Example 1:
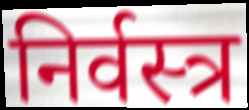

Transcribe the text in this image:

निर्वस्त्र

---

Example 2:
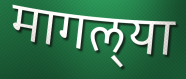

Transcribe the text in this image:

मागल्या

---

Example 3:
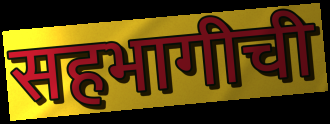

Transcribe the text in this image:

सहभागीची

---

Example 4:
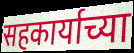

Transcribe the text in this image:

सहकार्याच्या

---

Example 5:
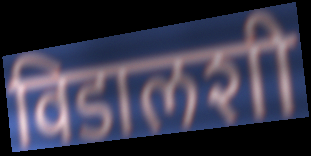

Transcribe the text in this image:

विडालशी